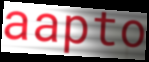
aapto